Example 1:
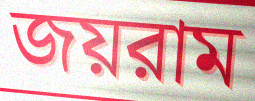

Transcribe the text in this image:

জয়রাম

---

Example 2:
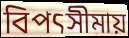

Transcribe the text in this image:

বিপৎসীমায়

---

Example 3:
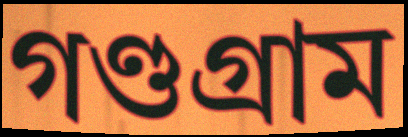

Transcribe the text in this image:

গণ্ডগ্রাম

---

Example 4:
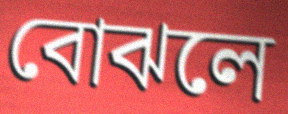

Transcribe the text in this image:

বোঝলে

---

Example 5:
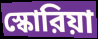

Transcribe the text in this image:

স্কোরিয়া